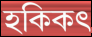
হকিকৎ